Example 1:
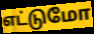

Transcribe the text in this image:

எட்டுமோ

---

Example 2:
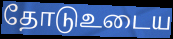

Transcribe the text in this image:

தோடுஉடைய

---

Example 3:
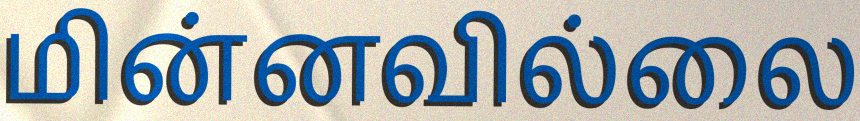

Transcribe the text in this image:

மின்னவில்லை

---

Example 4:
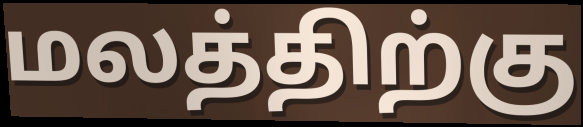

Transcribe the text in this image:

மலத்திற்கு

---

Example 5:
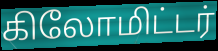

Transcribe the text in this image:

கிலோமிட்டர்